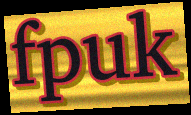
fpuk